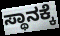
ಸ್ಥಾನಕ್ಕೆ